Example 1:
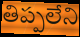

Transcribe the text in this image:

తిప్పలేని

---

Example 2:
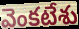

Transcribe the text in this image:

వెంకటేశు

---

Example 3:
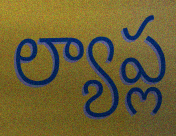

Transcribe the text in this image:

ల్యాప్ల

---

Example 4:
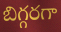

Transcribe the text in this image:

బిగ్గరగా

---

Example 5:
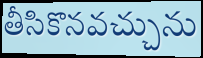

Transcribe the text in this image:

తీసికొనవచ్చును